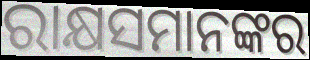
ରାକ୍ଷସମାନଙ୍କର